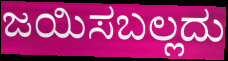
ಜಯಿಸಬಲ್ಲದು